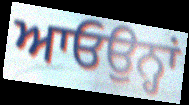
ਆਓਉਨ੍ਹਾਂ